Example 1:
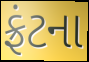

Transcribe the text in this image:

ફ્રંટના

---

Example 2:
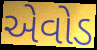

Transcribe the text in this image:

એવોડ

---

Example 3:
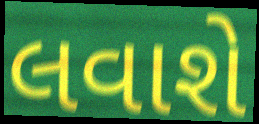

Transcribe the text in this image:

લવાશે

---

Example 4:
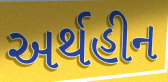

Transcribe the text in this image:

અર્થહીન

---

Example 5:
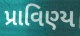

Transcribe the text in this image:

પ્રાવિણ્ય